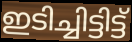
ഇടിച്ചിട്ടിട്ട്